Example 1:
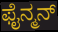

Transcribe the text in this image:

ಫೈನ್ಮನ್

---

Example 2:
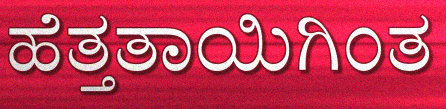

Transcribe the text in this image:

ಹೆತ್ತತಾಯಿಗಿಂತ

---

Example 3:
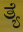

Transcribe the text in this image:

ತ್ಯೆ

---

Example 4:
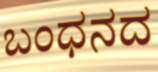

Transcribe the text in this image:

ಬಂಧನದ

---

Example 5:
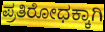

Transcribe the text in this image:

ಪ್ರತಿರೋಧಕ್ಕಾಗಿ